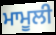
ਮਾਮੂਲੀ